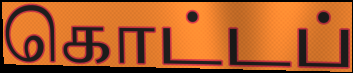
கொட்டப்